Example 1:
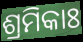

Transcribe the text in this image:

ଶ୍ରମିକାଃ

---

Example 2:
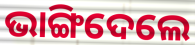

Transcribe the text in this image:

ଭାଙ୍ଗିଦେଲେ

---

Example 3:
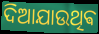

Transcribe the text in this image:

ଦିଆଯାଉଥିଵ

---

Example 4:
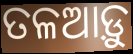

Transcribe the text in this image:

ତଳଆଡ଼ୁ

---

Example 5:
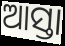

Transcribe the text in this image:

ଆସ୍ତା